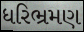
ધરિભ્રમણ